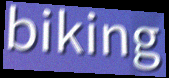
biking